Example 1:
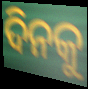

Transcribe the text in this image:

ଦିନକୁ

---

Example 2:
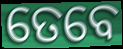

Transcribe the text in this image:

ତେବେ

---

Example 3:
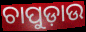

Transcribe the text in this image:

ଚାପୁଡ଼ାଉ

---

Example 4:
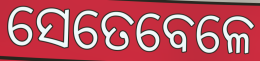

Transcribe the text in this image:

ସେତେବେଳେ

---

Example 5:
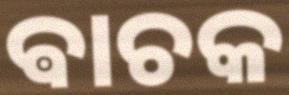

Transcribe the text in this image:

ଵାଚକ